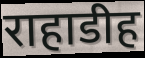
राहाडीह